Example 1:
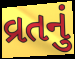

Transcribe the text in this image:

વ્રતનું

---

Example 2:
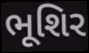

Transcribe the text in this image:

ભૂશિર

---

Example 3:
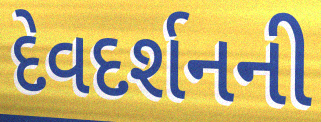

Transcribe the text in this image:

દેવદર્શનની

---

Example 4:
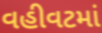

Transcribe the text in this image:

વહીવટમાં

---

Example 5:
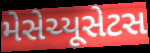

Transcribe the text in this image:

મેસેચ્યૂસેટસ